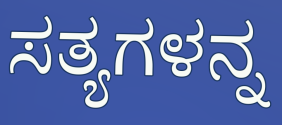
ಸತ್ಯಗಳನ್ನ